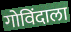
गोविंदाला